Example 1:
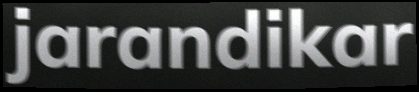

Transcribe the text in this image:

jarandikar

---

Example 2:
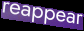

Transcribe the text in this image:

reappear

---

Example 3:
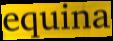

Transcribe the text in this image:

equina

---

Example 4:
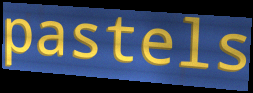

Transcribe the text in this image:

pastels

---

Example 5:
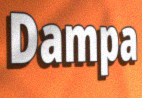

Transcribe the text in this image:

Dampa